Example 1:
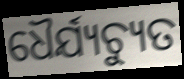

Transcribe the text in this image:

ଧୈର୍ଯ୍ୟଚ୍ୟୁତ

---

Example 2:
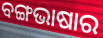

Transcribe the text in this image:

ବଙ୍ଗଭାଷାର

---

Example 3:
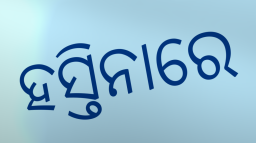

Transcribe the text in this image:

ହସ୍ତିନାରେ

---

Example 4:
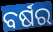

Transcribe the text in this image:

ବର୍ଷର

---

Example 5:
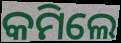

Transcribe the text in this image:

କମିଲେ